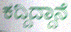
ಕದ್ದಿದ್ದಾನೆ